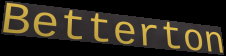
Betterton